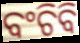
ବଂଚିବି